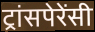
ट्रांसपेरेंसी